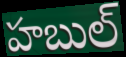
హబుల్